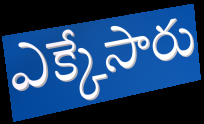
ఎక్కేసారు